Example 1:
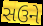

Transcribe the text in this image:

સઉને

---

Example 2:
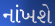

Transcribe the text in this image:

નાંખશે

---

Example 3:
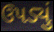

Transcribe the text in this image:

ઉપડ્યું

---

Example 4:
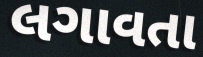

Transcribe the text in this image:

લગાવતા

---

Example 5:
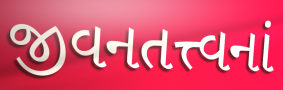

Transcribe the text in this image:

જીવનતત્ત્વનાં